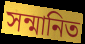
সন্মানিত